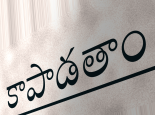
కాపాడతాం